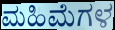
ಮಹಿಮೆಗಳ